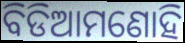
ବିଡିଆମଣୋହି